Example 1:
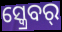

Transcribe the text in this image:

ସ୍କ୍ରେବର୍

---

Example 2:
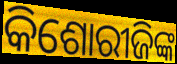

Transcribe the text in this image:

କିଶୋରୀଜିଙ୍କ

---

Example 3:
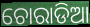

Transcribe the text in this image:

ଚୋରାଡିଆ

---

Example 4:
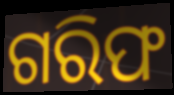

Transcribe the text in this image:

ଗରିଫ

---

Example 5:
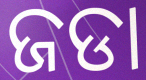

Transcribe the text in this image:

ଜଡା